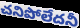
చనిపోలేదనీ